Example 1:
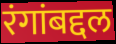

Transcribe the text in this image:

रंगांबद्दल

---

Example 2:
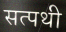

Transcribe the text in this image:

सत्पथी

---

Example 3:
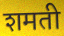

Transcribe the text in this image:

शमती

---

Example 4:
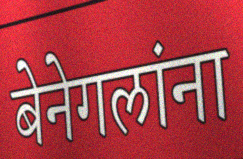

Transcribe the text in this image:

बेनेगलांना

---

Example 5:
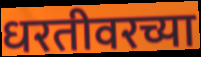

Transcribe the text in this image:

धरतीवरच्या